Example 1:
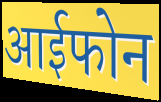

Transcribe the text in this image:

आईफोन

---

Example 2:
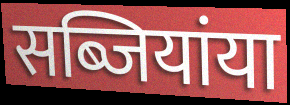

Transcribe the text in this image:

सब्जियांया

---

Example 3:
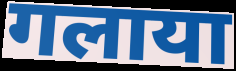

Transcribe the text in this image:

गलाया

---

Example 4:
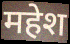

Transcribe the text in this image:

महेश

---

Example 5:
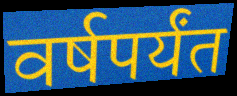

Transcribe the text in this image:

वर्षपर्यंत